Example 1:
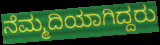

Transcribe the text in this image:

ನೆಮ್ಮದಿಯಾಗಿದ್ದರು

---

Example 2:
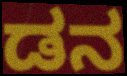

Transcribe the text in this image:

ಡನ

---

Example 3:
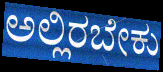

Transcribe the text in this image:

ಅಲ್ಲಿರಬೇಕು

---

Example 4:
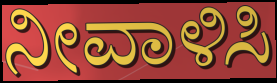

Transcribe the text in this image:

ನೀವಾಳಿಸಿ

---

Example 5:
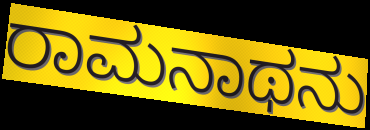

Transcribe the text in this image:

ರಾಮನಾಥನು